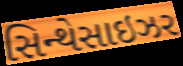
સિન્થેસાઇઝર